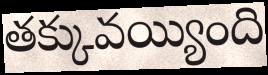
తక్కువయ్యింది